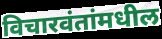
विचारवंतांमधील